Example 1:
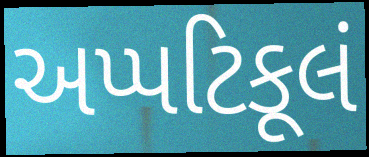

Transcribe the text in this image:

અપ્પટિકૂલં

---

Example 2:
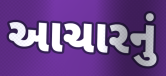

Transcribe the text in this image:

આચારનું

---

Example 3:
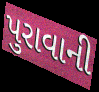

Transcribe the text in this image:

પુરાવાની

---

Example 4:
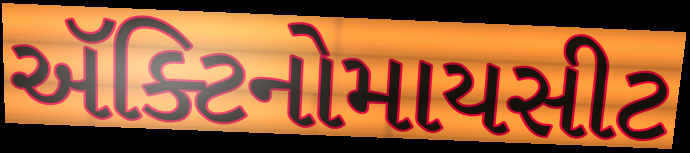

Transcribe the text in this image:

ઍક્ટિનોમાયસીટ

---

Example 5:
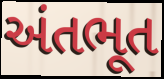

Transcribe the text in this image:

અંતભૂત